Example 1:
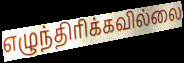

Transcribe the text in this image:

எழுந்திரிக்கவில்லை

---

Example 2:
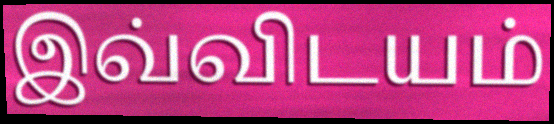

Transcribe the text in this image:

இவ்விடயம்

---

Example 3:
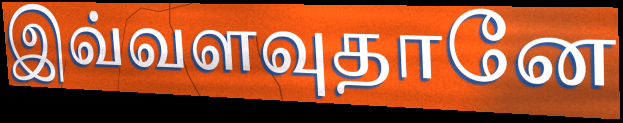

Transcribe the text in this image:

இவ்வளவுதானே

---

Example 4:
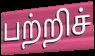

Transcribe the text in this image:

பற்றிச்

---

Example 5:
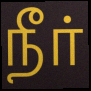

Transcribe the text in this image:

நீர்